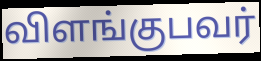
விளங்குபவர்